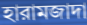
হারামজাদা